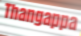
Thangappa